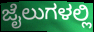
ಜೈಲುಗಳಲ್ಲಿ